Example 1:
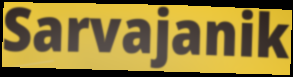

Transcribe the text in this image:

Sarvajanik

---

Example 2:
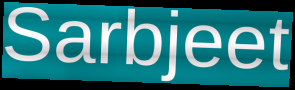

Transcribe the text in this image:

Sarbjeet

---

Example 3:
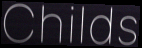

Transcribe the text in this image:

Childs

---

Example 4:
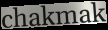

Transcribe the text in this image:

chakmak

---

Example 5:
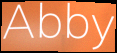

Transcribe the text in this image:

Abby